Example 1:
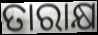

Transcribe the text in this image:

ତାରାକ୍ଷ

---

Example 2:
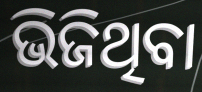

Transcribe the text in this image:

ଭିଜିଥିବା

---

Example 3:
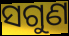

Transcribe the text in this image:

ସଗୁଣ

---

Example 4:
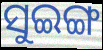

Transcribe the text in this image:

ସୁଇଙ୍ଗ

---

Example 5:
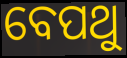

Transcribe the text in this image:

ବେପଥୁ